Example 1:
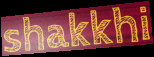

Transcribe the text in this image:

shakkhi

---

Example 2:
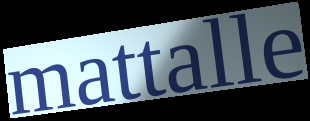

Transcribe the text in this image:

mattalle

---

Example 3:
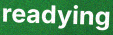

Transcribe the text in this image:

readying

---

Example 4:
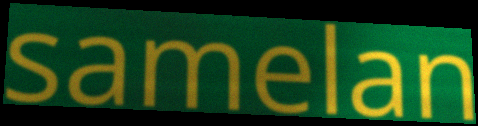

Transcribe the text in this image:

samelan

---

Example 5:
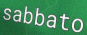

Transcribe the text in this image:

sabbato